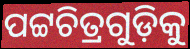
ପଟ୍ଟଚିତ୍ରଗୁଡ଼ିକୁ